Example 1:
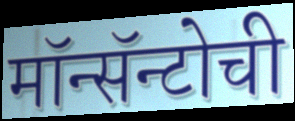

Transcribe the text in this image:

मॉन्सॅन्टोची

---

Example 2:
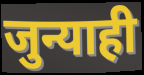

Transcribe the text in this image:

जुन्याही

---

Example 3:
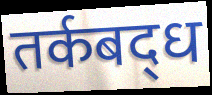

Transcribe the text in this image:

तर्कबद्ध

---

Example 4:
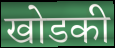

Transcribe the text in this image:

खोडकी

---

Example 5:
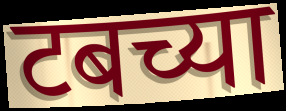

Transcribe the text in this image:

टबच्या